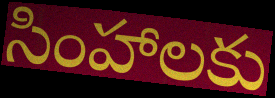
సింహాలకు